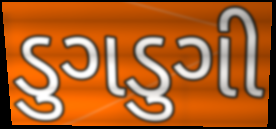
ડુગડુગી